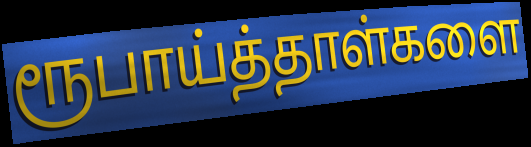
ரூபாய்த்தாள்களை